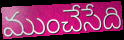
ముంచేసేది